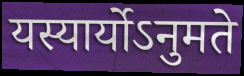
यस्यार्योऽनुमते